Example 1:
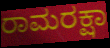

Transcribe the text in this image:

ರಾಮರಕ್ಷಾ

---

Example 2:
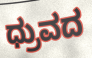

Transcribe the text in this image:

ಧ್ರುವದ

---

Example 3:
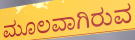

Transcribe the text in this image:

ಮೂಲವಾಗಿರುವ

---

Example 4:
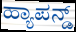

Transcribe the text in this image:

ಹ್ಯಾಪನ್ಡ್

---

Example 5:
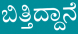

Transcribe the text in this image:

ಬಿತ್ತಿದ್ದಾನೆ